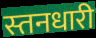
स्‍तनधारी